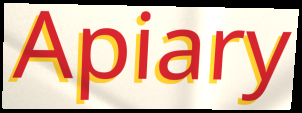
Apiary